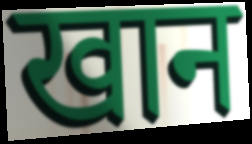
खान